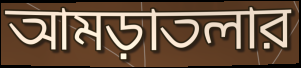
আমড়াতলার